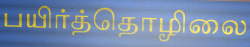
பயிர்த்தொழிலை